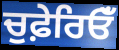
ਚੁਫ਼ੇਰਿਓਁ